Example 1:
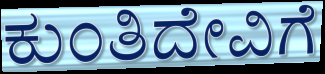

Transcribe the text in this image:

ಕುಂತಿದೇವಿಗೆ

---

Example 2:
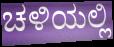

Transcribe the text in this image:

ಚಳಿಯಲ್ಲಿ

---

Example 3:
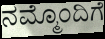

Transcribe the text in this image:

ನಮ್ಮೊಂದಿಗೆ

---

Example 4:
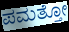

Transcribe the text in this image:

ಪಮತ್ತೋ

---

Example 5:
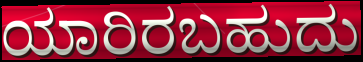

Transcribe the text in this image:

ಯಾರಿರಬಹುದು